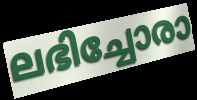
ലഭിച്ചോരാ